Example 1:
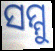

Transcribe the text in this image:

ସମ୍ମୁ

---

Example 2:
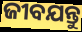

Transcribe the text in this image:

ଜୀବଯନ୍ତୁ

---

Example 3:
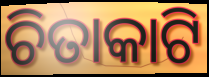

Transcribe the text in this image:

ଚିତାକାଟି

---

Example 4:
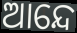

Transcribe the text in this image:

ଆନ୍ଦେ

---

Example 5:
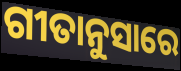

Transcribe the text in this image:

ଗୀତାନୁସାରେ